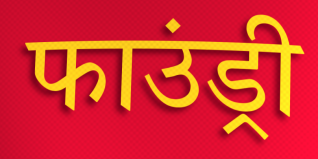
फाउंड्री